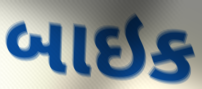
બાઇક